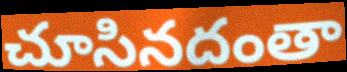
చూసినదంతా